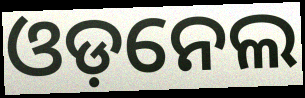
ଓଡ଼ନେଲ